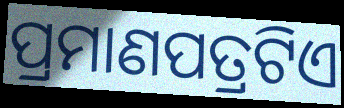
ପ୍ରମାଣପତ୍ରଟିଏ